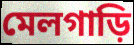
মেলগাড়ি